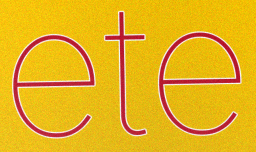
ete